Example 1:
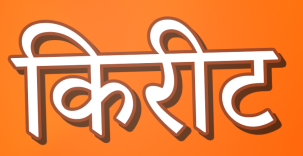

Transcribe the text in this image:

किरीट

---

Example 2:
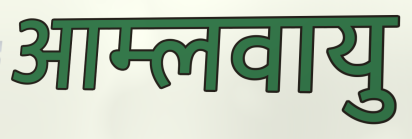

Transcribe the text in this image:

आम्लवायु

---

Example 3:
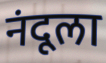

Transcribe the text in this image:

नंदूला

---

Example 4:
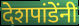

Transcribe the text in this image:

देशपांडेंनी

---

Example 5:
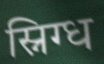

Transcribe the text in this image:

स्निग्ध